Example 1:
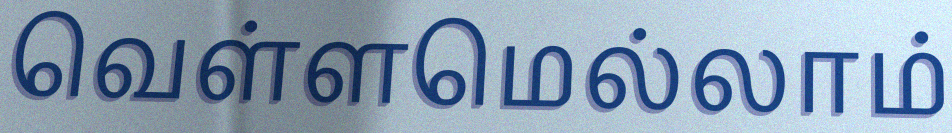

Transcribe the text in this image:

வெள்ளமெல்லாம்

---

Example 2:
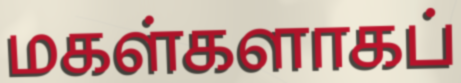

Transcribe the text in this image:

மகள்களாகப்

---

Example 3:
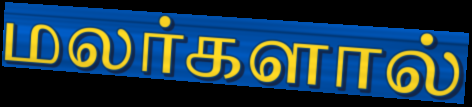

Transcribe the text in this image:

மலர்களால்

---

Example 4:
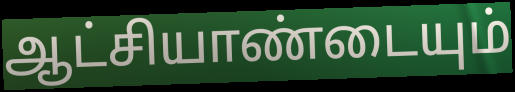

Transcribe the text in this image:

ஆட்சியாண்டையும்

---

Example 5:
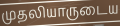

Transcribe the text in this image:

முதலியாருடைய